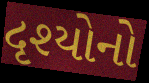
દૃશ્યોનો